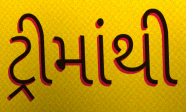
ટ્રીમાંથી